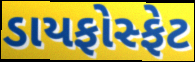
ડાયફોસ્ફેટ